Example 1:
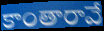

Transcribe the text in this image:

కాంతారావే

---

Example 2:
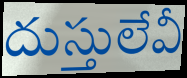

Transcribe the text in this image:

దుస్తులేవీ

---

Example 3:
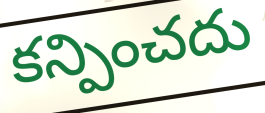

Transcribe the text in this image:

కన్పించదు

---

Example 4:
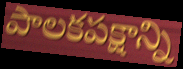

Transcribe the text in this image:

పాలకపక్షాన్ని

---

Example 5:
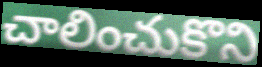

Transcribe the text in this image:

చాలించుకొని